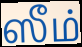
ஸீம்